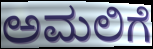
ಅಮಲಿಗೆ